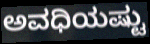
ಅವಧಿಯಷ್ಟು